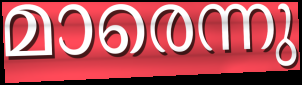
മാരെന്നു